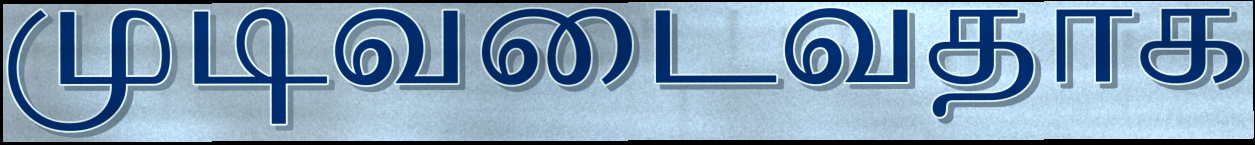
முடிவடைவதாக